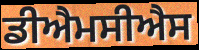
ਡੀਐਮਸੀਐਸ